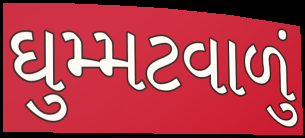
ઘુમ્મટવાળું